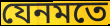
যেনমতে